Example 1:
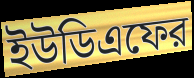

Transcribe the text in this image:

ইউডিএফের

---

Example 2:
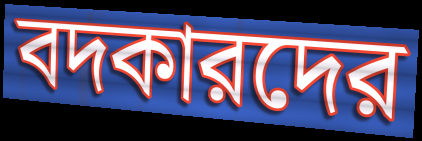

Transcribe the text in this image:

বদকারদের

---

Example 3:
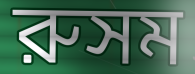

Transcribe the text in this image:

রুসম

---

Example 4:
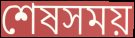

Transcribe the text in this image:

শেষসময়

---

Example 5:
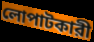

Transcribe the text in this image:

লোপাটকারী